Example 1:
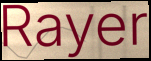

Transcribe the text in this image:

Rayer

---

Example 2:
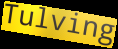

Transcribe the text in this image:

Tulving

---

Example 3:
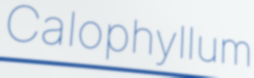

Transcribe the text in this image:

Calophyllum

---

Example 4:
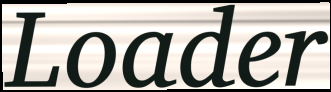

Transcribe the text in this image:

Loader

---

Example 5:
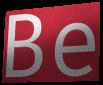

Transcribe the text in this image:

Be